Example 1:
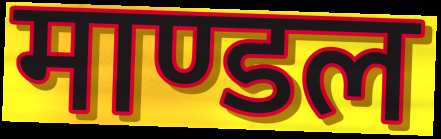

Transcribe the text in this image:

माण्डल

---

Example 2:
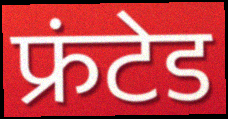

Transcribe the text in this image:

फ्रंटेड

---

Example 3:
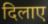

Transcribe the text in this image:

दिलाए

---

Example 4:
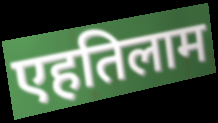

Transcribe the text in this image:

एहतिलाम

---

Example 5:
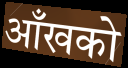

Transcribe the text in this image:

आँखको